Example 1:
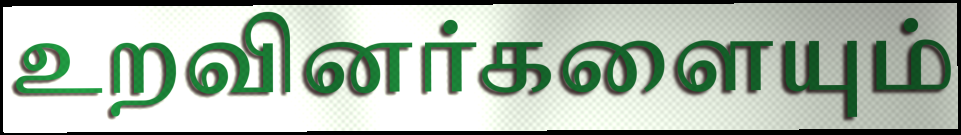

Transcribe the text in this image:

உறவினர்களையும்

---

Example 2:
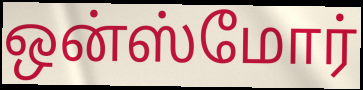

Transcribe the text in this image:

ஒன்ஸ்மோர்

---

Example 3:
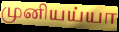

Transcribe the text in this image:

முனியய்யா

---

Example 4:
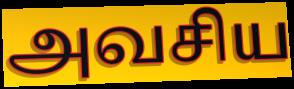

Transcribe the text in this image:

அவசிய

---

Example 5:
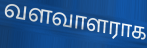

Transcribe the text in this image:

வளவாளராக